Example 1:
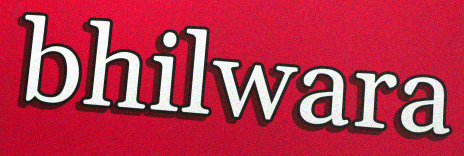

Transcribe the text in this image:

bhilwara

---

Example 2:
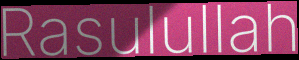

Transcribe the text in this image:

Rasulullah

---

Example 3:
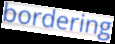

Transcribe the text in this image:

bordering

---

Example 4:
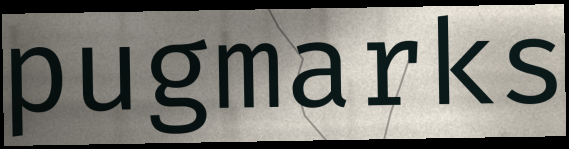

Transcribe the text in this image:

pugmarks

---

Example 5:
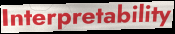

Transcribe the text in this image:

Interpretability